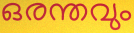
ഒരന്തവും